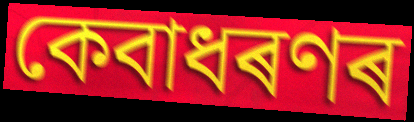
কেবাধৰণৰ